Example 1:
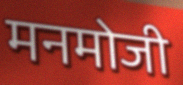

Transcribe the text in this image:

मनमोजी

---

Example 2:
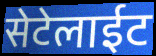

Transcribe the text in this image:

सेटेलाईट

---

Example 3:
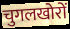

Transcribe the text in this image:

चुगलखोरों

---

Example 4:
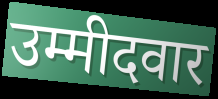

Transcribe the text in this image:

उम्मीदवार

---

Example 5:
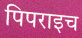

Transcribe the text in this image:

पिपराइच